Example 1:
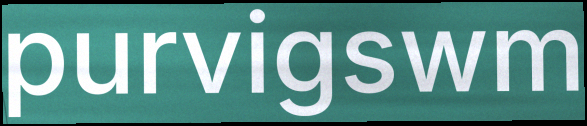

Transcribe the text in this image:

purvigswm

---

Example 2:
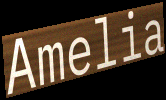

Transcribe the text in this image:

Amelia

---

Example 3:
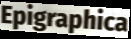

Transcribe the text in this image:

Epigraphica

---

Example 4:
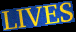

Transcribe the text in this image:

LIVES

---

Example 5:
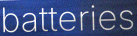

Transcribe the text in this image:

batteries